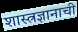
शास्त्रज्ञानाची